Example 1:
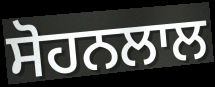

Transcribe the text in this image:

ਸੋਹਨਲਾਲ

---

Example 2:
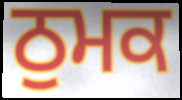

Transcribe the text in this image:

ਠੁਮਕ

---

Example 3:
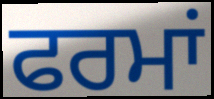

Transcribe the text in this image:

ਫਰਮਾਂ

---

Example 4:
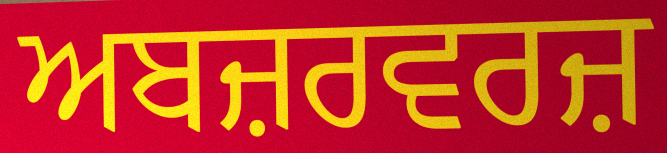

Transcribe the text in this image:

ਅਬਜ਼ਰਵਰਜ਼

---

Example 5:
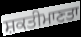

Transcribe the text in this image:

ਸ਼ਕਤੀਮਾਣਤਾ